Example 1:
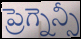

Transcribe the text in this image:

ప్రెగ్నెన్సీ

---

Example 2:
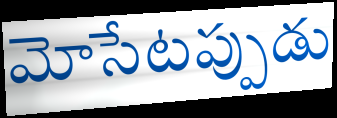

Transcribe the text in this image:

మోసేటప్పుడు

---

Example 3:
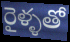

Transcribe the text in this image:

రైళ్ళతో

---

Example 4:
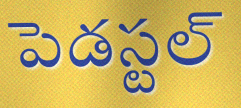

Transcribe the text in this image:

పెడస్టల్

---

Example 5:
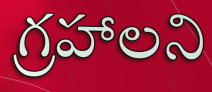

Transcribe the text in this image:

గ్రహాలని